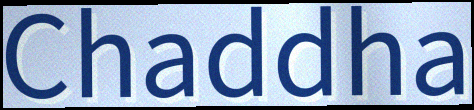
Chaddha